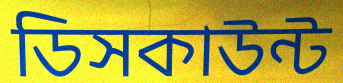
ডিসকাউন্ট